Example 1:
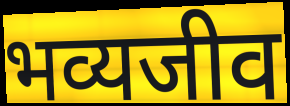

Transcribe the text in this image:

भव्यजीव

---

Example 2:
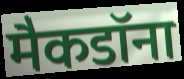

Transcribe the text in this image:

मैकडॉना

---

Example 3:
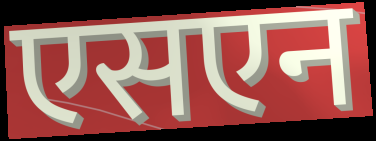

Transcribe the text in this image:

एसएन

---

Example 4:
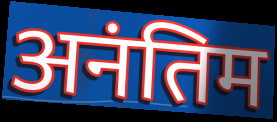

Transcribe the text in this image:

अनंतिम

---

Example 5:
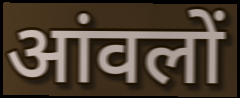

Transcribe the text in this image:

आंवलों